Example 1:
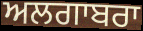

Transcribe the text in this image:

ਅਲਗਾਬਰਾ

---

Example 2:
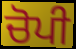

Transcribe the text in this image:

ਚੋਪੀ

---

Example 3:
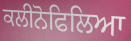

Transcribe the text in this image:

ਕਲੀਨੋਫਿਲਿਆ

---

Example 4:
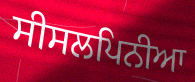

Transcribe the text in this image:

ਸੀਸਲਪਿਨੀਆ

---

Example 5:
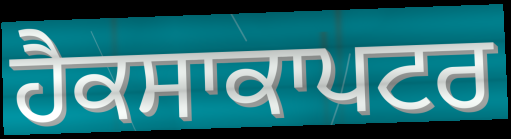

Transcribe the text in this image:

ਹੈਕਸਾਕਾਪਟਰ